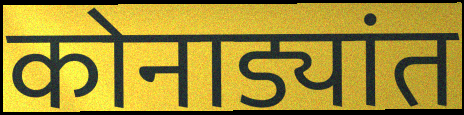
कोनाड्यांत